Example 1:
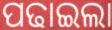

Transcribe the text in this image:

ପଢାଇଲା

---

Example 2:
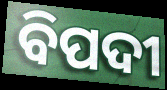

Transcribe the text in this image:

ବିପଦୀ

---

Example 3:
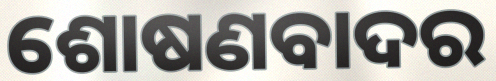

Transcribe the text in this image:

ଶୋଷଣବାଦର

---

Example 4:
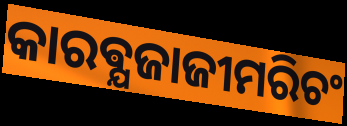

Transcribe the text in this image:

କାରଵ୍ଯଜାଜୀମରିଚଂ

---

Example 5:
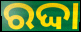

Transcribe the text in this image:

ରଦ୍ଦା